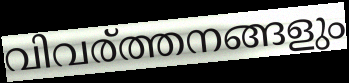
വിവര്ത്തനങ്ങളും